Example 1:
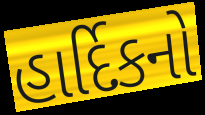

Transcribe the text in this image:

હાર્દિકનો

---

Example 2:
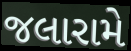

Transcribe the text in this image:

જલારામે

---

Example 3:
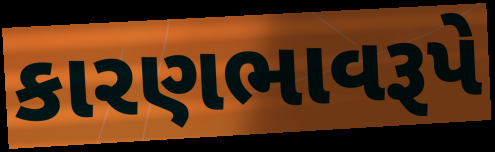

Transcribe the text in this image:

કારણભાવરૂપે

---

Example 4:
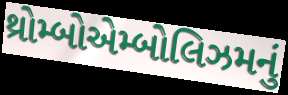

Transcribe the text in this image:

થ્રોમ્બોએમ્બોલિઝમનું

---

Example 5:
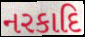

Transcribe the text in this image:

નરકાદિ